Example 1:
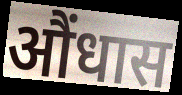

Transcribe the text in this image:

औंधास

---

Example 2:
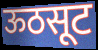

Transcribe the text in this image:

ऊठसूट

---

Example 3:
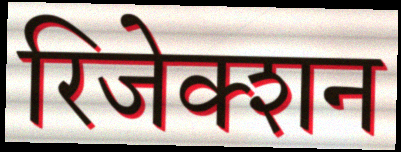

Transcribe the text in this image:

रिजेक्शन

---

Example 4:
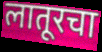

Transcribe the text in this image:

लातूरचा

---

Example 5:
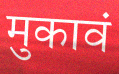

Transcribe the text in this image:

मुकावं